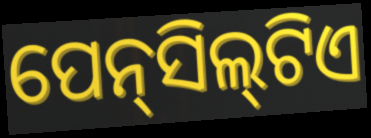
ପେନ୍‍ସିଲ୍‍ଟିଏ